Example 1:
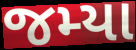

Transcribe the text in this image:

જમ્યા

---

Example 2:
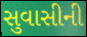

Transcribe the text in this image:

સુવાસીની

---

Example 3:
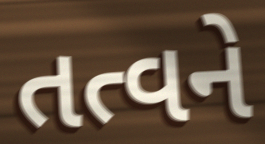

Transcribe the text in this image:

તત્વને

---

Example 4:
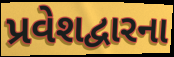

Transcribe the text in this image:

પ્રવેશદ્વારના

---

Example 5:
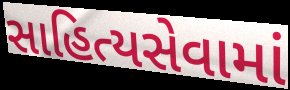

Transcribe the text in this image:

સાહિત્યસેવામાં